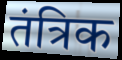
तंत्रिक